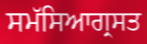
ਸਮੱਸਿਆਗ੍ਰਸਤ